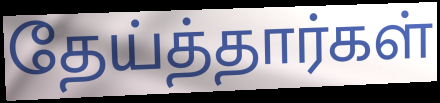
தேய்த்தார்கள்